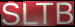
SLTB